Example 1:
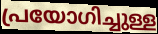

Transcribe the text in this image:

പ്രയോഗിച്ചുള്ള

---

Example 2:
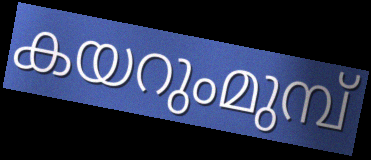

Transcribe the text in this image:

കയറുംമുമ്പ്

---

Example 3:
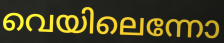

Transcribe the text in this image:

വെയിലെന്നോ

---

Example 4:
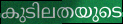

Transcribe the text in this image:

കുടിലതയുടെ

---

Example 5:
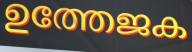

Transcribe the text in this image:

ഉത്തേജക